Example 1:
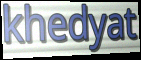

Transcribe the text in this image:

khedyat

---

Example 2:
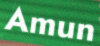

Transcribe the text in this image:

Amun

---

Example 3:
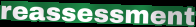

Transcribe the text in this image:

reassessment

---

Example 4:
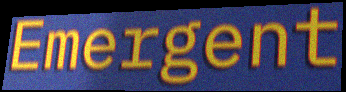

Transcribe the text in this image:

Emergent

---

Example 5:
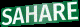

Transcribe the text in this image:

SAHARE